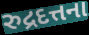
રુદ્રદત્તના